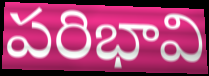
పరిభావి